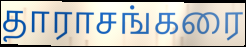
தாராசங்கரை